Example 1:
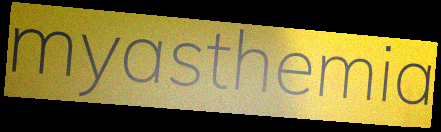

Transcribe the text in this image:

myasthemia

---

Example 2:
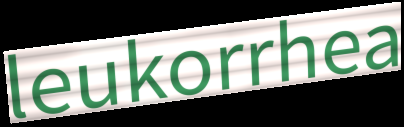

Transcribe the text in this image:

leukorrhea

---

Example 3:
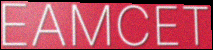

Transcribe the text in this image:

EAMCET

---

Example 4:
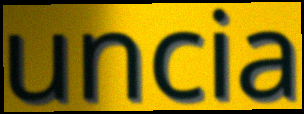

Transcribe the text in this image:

uncia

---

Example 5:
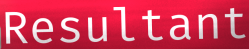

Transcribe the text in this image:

Resultant